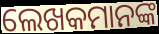
ଲେଖକମାନଙ୍କ